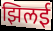
झिलई